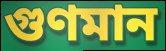
গুণমান